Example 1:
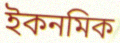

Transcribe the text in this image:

ইকনমিক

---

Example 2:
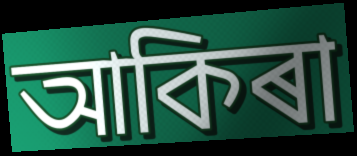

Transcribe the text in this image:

আকিৰা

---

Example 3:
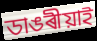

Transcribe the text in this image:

ডাঙৰীয়াই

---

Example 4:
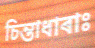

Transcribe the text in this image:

চিন্তাধাৰাঃ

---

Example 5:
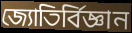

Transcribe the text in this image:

জ্যোতিৰ্বিজ্ঞান